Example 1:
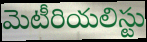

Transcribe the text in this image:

మెటీరియలిస్టు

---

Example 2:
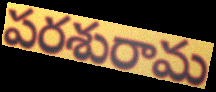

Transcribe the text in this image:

పరశురామ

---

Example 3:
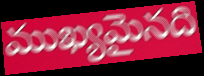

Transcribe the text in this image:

ముఖ్యమైనది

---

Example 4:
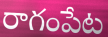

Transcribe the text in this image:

రాగంపేట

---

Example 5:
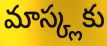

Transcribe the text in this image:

మాస్క్లకు